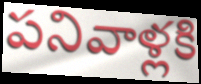
పనివాళ్లకి